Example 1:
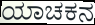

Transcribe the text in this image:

ಯಾಚಕನ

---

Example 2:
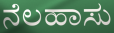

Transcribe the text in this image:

ನೆಲಹಾಸು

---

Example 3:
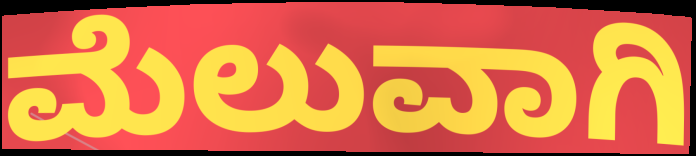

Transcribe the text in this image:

ಮೆಲುವಾಗಿ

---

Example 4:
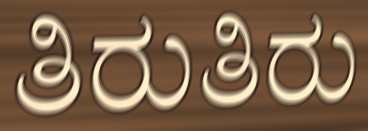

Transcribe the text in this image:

ತಿರುತಿರು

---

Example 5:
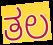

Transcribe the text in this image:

ತಲ